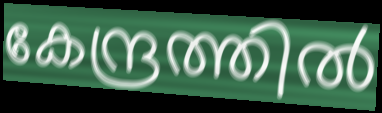
കേന്ദ്രത്തിൽ